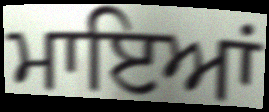
ਮਾਇਆਂ